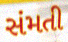
સંમતી